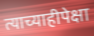
त्याच्याहीपेक्षा